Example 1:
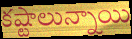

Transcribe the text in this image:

కష్టాలున్నాయి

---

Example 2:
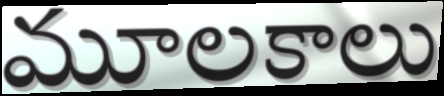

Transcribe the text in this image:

మూలకాలు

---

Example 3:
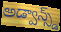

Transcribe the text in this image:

అడ్వాన్స్డ్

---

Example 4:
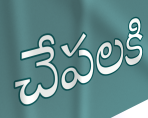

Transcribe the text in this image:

చేపలకి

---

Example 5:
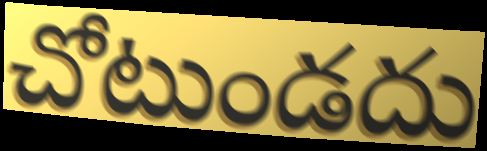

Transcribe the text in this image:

చోటుండదు